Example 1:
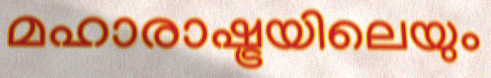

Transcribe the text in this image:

മഹാരാഷ്ട്രയിലെയും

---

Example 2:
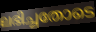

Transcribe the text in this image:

ലഭിച്ചതോടെ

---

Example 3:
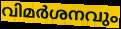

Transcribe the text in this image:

വിമർശനവും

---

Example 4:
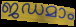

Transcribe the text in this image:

ജഡമാം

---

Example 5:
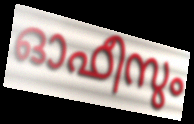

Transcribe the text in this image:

ഓഫീസും